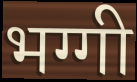
भग्गी